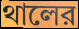
থালের